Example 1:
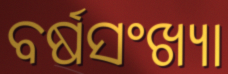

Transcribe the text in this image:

ବର୍ଷସଂଖ୍ୟା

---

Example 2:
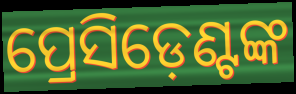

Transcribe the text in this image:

ପ୍ରେସିଡ଼େଣ୍ଟଙ୍କ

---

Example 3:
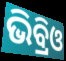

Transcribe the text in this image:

ଭିବ୍ରିଓ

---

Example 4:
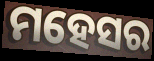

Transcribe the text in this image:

ମହେସର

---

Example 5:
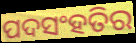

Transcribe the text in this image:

ପଦସଂହତିର